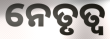
ନେତୃତ୍ଵ